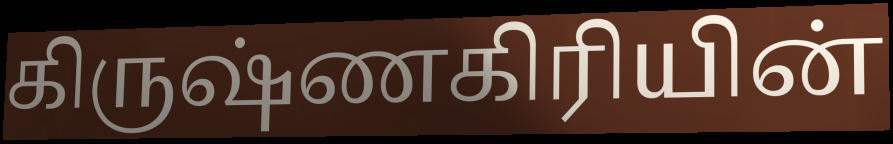
கிருஷ்ணகிரியின்